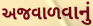
અજવાળવાનું